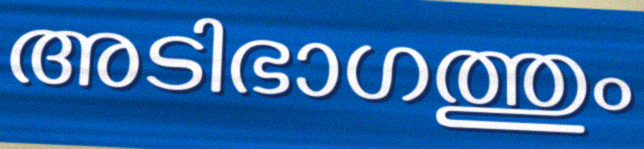
അടിഭാഗത്തും